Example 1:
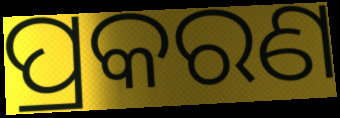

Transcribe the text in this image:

ପ୍ରକରଣ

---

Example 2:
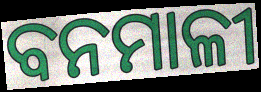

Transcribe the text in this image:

ବନମାଳୀ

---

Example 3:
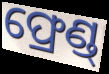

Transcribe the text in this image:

ଫ୍ରେଣ୍ଡ୍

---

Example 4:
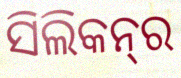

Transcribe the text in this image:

ସିଲିକନ୍‌ର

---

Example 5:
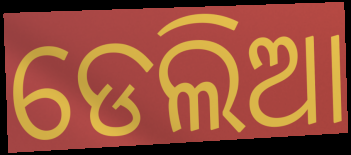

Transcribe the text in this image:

ଡେଲିଆ